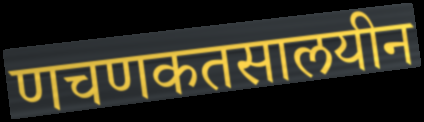
णचणकतसालयीन